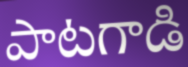
పాటగాడి